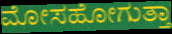
ಮೋಸಹೋಗುತ್ತಾ